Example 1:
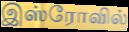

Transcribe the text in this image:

இஸ்ரோவில்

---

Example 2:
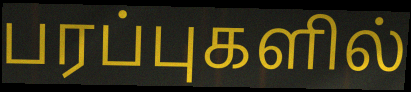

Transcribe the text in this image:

பரப்புகளில்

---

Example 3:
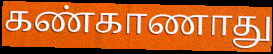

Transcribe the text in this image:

கண்காணாது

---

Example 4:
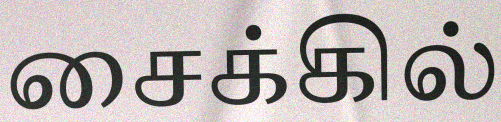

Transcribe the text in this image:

சைக்கில்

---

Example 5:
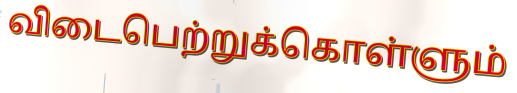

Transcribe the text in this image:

விடைபெற்றுக்கொள்ளும்